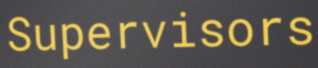
Supervisors